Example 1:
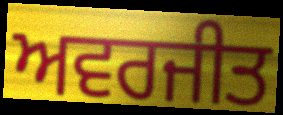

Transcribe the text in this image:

ਅਵਰਜੀਤ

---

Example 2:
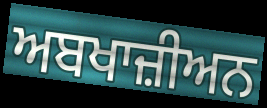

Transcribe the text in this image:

ਅਬਖਾਜ਼ੀਅਨ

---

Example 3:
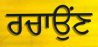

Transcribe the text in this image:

ਰਚਾਉਂਣ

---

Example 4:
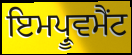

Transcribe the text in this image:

ਇਮਪ੍ਰੂਵਮੈਂਟ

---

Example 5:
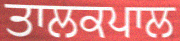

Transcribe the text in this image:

ਤਾਲਕਪਾਲ